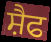
ਸ਼ੈਫ